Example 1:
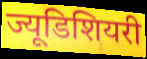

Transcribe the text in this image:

ज्यूडिशियरी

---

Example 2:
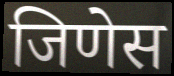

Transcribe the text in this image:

जिणेस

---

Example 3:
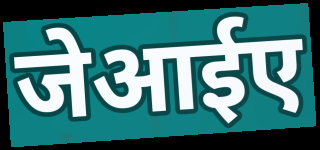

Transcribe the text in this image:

जेआईए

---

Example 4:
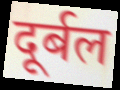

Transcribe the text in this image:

दूर्बल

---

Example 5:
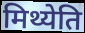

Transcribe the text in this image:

मिथ्येति